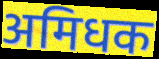
अमिधक